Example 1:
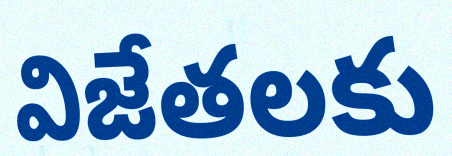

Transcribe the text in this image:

విజేతలకు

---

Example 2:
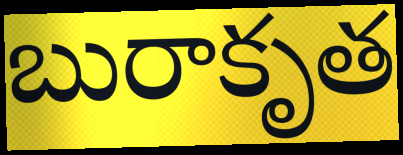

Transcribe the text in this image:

బురాకృత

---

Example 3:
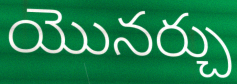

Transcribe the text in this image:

యొనర్చు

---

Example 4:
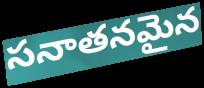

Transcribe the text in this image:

సనాతనమైన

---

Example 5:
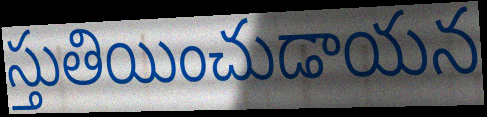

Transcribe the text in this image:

స్తుతియించుడాయన